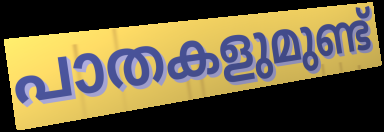
പാതകളുമുണ്ട്